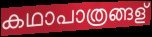
കഥാപാത്രങ്ങള്